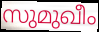
സുമുഖീം